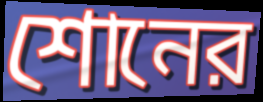
শোনের